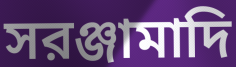
সরঞ্জামাদি